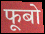
फूबो